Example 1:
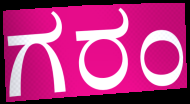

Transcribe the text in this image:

ಗರಂ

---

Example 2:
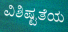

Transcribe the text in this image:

ವಿಶಿಷ್ಟತೆಯ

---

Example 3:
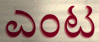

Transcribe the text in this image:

ಎಂಟ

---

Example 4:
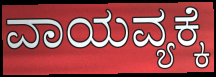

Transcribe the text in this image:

ವಾಯವ್ಯಕ್ಕೆ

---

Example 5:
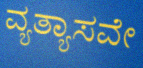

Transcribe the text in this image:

ವ್ಯತ್ಯಾಸವೇ